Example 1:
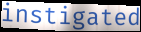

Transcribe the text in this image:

instigated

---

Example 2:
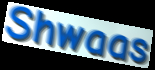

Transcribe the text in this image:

Shwaas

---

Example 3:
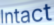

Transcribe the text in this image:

Intact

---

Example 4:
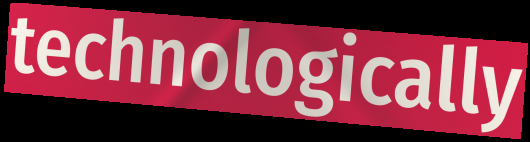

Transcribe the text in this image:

technologically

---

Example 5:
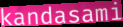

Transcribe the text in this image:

kandasami